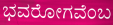
ಭವರೋಗವೆಂಬ